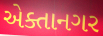
એક્તાનગર